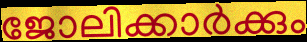
ജോലിക്കാർക്കും